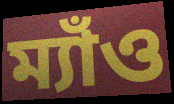
ম্যাঁও